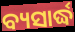
ବ୍ୟସାର୍ଦ୍ଧ